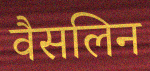
वैसलिन